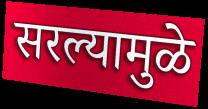
सरल्यामुळे